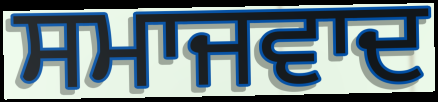
ਸਮਾਜਵਾਦ